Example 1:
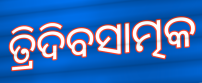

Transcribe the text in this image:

ତ୍ରିଦିବସାତ୍ମକ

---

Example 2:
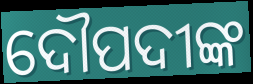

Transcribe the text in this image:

ଦୌପଦୀଙ୍କ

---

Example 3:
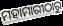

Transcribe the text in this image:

ମହାମାରୀଠାରୁ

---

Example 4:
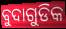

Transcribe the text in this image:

ବୁଦାଗୁଡିକ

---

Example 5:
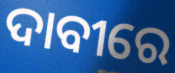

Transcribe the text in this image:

ଦାବୀରେ